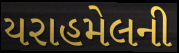
યરાહમેલની